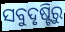
ସବୁଦୃଷ୍ଟିରୁ